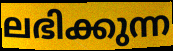
ലഭിക്കുന്ന